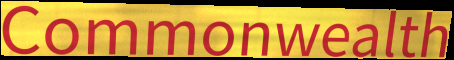
Commonwealth